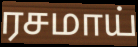
ரசமாய்